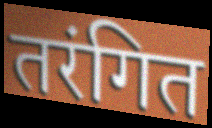
तरंगित